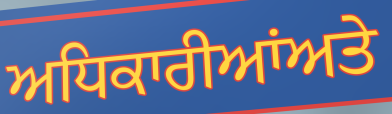
ਅਧਿਕਾਰੀਆਂਅਤੇ